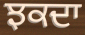
ਝਕਦਾ